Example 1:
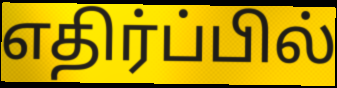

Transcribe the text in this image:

எதிர்ப்பில்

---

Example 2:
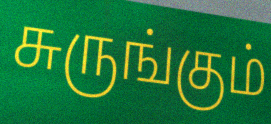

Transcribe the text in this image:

சுருங்கும்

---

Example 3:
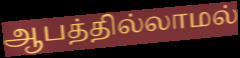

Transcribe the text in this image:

ஆபத்தில்லாமல்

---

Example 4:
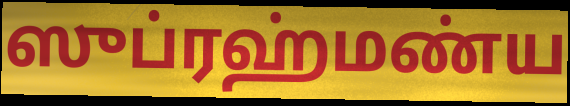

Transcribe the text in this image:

ஸுப்ரஹ்மண்ய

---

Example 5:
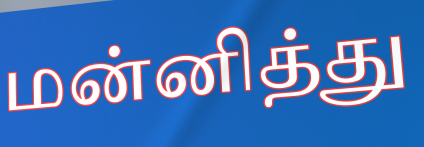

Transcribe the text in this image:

மன்னித்து